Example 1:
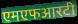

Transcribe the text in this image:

एमएफआरटी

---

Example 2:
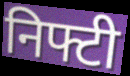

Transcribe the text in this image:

निफ्टी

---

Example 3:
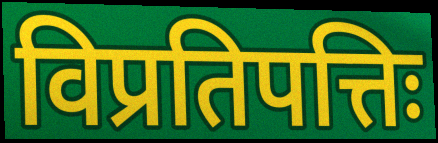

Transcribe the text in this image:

विप्रतिपत्तिः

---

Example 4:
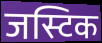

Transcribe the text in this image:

जस्टिक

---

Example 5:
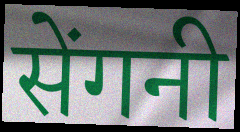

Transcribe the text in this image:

सेंगनी